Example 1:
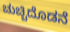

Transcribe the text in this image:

ಚುಚ್ಚಿದೊಡನೆ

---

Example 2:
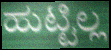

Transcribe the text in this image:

ಹುಟ್ಟಿಲ್ಲ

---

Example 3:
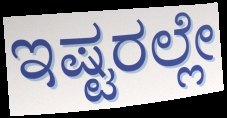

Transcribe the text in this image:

ಇಷ್ಟರಲ್ಲೇ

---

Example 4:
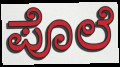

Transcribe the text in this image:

ಪೊಲೆ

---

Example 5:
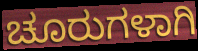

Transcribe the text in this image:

ಚೂರುಗಳಾಗಿ